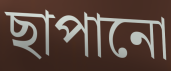
ছাপানো